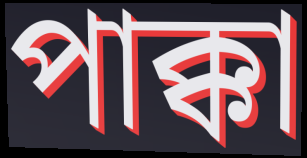
পাক্কা